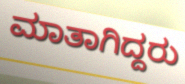
ಮಾತಾಗಿದ್ದರು